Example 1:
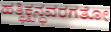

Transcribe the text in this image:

ಹತ್ಥಿಕ್ಖನ್ಧವರಗತೋ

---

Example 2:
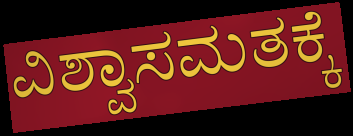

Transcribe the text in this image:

ವಿಶ್ವಾಸಮತಕ್ಕೆ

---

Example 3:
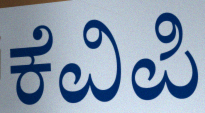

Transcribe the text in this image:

ಕೆವಿಪಿ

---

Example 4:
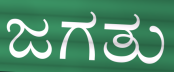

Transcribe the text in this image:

ಜಗತು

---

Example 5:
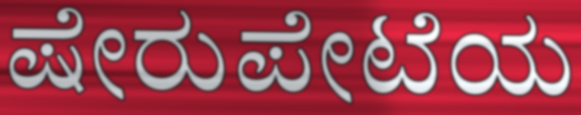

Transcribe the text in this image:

ಷೇರುಪೇಟೆಯ